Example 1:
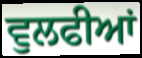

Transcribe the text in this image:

ਵੁਲਫੀਆਂ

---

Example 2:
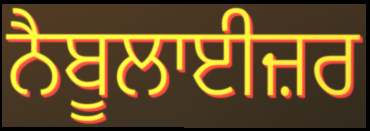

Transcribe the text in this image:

ਨੈਬੂਲਾਈਜ਼ਰ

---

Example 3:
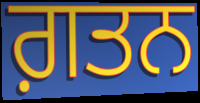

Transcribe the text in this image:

ਗ਼ਤਨ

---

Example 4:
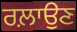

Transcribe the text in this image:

ਰਲ਼ਾਉਣ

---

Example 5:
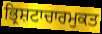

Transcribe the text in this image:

ਭ੍ਰਿਸ਼ਟਾਚਾਰਮੁਕਤ